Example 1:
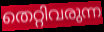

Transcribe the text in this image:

തെറ്റിവരുന്ന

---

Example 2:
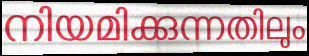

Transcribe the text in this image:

നിയമിക്കുന്നതിലും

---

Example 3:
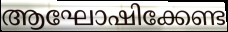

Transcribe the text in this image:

ആഘോഷിക്കേണ്ട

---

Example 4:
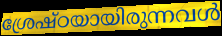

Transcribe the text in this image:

ശ്രേഷ്ഠയായിരുന്നവൾ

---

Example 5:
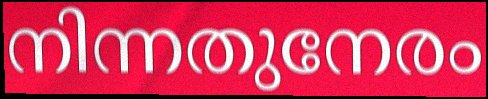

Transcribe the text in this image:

നിന്നതുനേരം